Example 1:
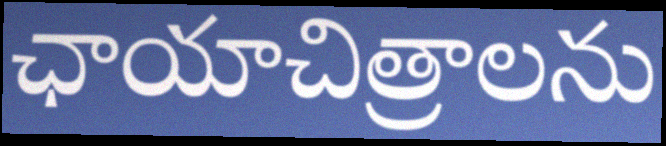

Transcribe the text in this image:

ఛాయాచిత్రాలను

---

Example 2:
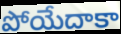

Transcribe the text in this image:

పోయేదాకా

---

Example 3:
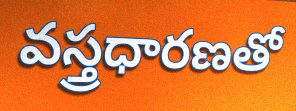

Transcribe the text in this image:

వస్త్రధారణతో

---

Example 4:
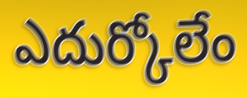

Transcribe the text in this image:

ఎదుర్కోలేం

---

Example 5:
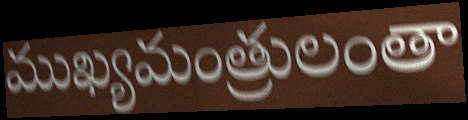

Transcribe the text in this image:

ముఖ్యమంత్రులంతా